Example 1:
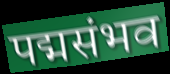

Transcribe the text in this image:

पद्मसंभव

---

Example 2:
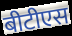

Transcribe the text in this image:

बीटीएस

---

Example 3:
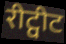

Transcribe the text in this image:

रीट्वीट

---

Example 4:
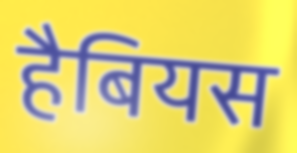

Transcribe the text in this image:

हैबियस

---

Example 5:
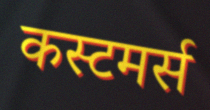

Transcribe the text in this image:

कस्टमर्स